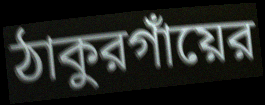
ঠাকুরগাঁয়ের